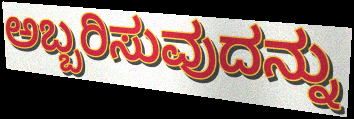
ಅಬ್ಬರಿಸುವುದನ್ನು